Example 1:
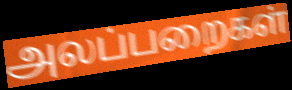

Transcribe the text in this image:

அலப்பறைகள்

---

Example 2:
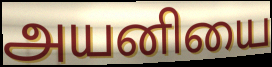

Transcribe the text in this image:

அயனியை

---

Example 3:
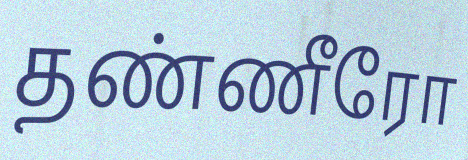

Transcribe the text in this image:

தண்ணீரோ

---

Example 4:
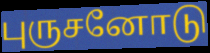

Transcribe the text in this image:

புருசனோடு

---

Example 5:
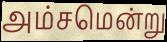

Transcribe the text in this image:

அம்சமென்று